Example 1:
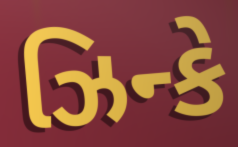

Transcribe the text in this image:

ઝિન્કે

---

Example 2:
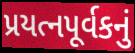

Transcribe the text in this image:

પ્રયત્નપૂર્વકનું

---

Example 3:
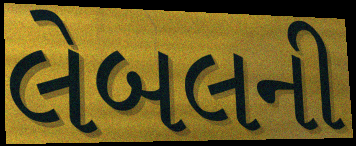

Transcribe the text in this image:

લેબલની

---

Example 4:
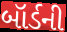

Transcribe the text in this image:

બૉર્ડની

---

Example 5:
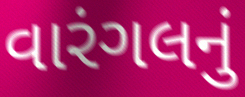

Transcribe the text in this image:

વારંગલનું